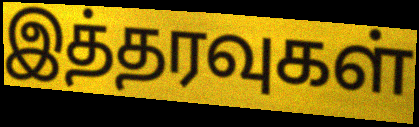
இத்தரவுகள்